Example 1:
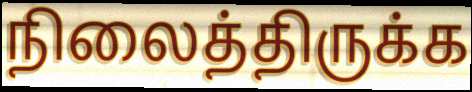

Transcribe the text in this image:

நிலைத்திருக்க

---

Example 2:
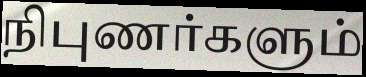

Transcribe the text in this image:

நிபுணர்களும்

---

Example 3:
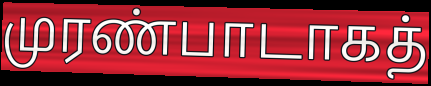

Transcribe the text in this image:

முரண்பாடாகத்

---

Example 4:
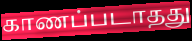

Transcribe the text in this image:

காணப்படாதது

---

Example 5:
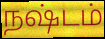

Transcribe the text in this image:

நஷ்டம்